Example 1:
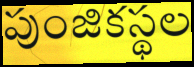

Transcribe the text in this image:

పుంజికస్థల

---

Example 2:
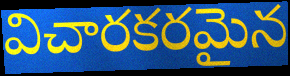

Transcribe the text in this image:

విచారకరమైన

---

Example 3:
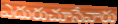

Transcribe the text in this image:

ఎదురుచూసేవారు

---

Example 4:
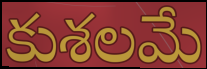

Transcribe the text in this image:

కుశలమే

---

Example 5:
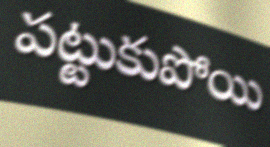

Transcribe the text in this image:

పట్టుకుపోయి